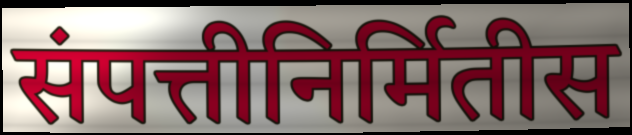
संपत्तीनिर्मितीस